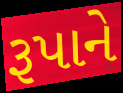
રૂપાને